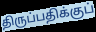
திருப்பதிக்குப்